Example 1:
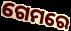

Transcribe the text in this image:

ଗେମରେ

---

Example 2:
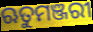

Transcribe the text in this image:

ଋତୁମଞ୍ଜରୀ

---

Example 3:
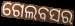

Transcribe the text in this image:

ଗେଲବସର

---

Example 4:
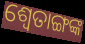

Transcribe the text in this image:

ଶ୍ୱେତାଙ୍ଗଙ୍କ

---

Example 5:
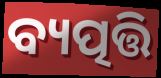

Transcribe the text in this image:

ବ୍ୟତ୍ପତ୍ତି